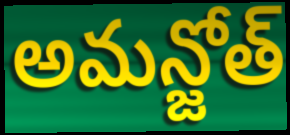
అమన్జోత్